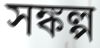
সঙ্কল্প